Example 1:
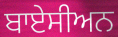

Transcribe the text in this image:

ਬਾਏਸੀਅਨ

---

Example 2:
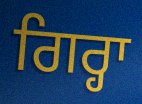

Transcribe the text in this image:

ਗਿਰ੍ਹਾ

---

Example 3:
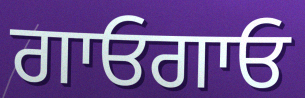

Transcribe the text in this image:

ਗਾਓਗਾਓ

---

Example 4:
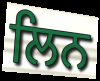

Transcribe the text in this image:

ਲਿਨ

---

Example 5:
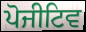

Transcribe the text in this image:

ਪੋਜੀਟਿਵ